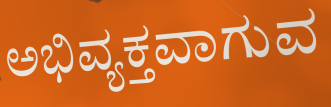
ಅಭಿವ್ಯಕ್ತವಾಗುವ